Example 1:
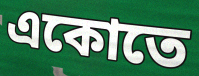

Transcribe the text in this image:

একোতে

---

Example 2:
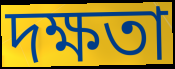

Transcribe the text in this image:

দক্ষতা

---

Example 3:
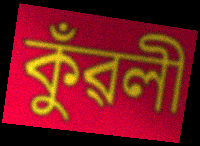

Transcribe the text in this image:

কুঁৱলী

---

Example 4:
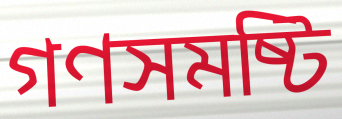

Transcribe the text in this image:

গণসমষ্টি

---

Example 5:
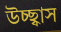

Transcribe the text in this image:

উচ্ছ্বাস